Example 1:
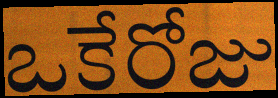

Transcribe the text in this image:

ఒకేరోజు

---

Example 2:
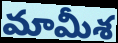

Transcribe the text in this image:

మామీశ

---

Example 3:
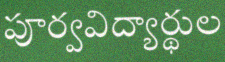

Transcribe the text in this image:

పూర్వవిద్యార్థుల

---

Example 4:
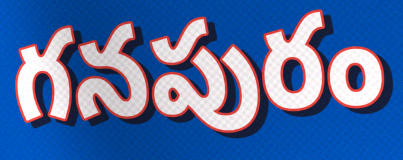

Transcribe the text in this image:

గనపురం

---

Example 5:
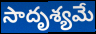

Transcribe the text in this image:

సాదృశ్యమే